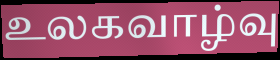
உலகவாழ்வு